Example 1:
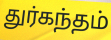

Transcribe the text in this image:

துர்கந்தம்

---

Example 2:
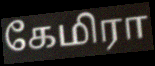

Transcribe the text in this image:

கேமிரா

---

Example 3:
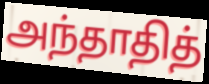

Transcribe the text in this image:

அந்தாதித்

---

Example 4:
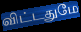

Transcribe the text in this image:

விட்டதுமே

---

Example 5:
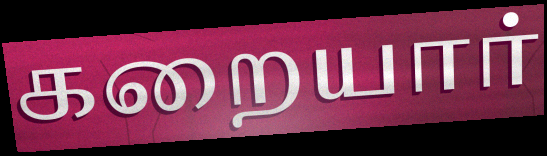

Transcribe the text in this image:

கறையார்